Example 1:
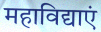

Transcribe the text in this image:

महाविद्याएं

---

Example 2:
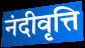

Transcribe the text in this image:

नंदीवृत्ति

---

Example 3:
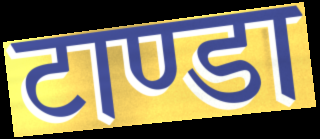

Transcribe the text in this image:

टाण्डा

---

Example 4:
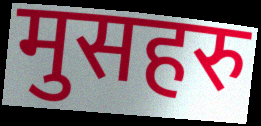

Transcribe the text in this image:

मुसहरु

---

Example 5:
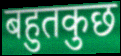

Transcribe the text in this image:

बहुतकुछ